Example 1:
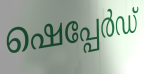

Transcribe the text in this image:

ഷെപ്പേർഡ്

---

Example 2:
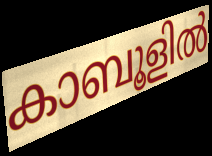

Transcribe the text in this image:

കാബൂളിൽ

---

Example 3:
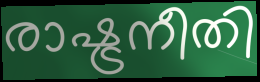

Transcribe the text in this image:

രാഷ്ട്രനീതി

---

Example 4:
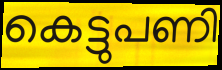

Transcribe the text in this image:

കെട്ടുപണി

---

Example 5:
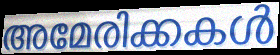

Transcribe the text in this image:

അമേരിക്കകൾ